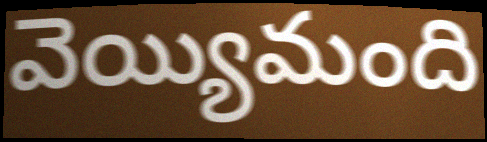
వెయ్యిమంది